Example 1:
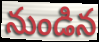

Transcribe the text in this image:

నుండిన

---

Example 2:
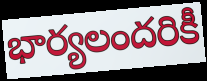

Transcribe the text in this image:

భార్యలందరికీ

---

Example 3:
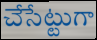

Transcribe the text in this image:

చేసేట్టుగా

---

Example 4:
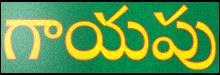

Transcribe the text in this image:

గాయపు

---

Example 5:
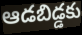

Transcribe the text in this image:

ఆడబిడ్డకు